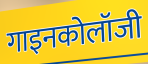
गाइनकोलॉजी